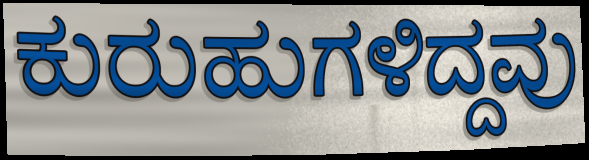
ಕುರುಹುಗಳಿದ್ದವು